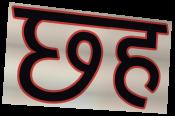
छ्ह